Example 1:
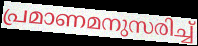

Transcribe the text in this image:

പ്രമാണമനുസരിച്ച്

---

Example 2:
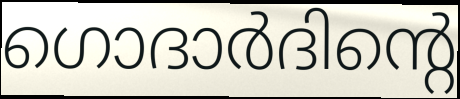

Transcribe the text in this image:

ഗൊദാർദിന്റെ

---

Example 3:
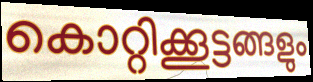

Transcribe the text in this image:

കൊറ്റിക്കൂട്ടങ്ങളും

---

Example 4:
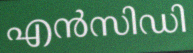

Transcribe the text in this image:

എൻസിഡി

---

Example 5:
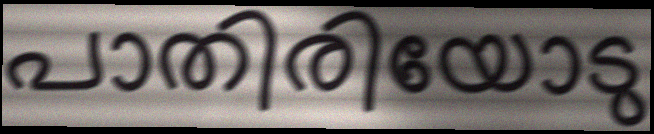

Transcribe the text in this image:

പാതിരിയോടു